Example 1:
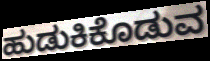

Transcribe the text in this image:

ಹುಡುಕಿಕೊಡುವ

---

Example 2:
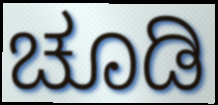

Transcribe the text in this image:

ಚೂಡಿ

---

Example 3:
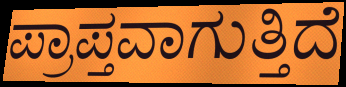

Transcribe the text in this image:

ಪ್ರಾಪ್ತವಾಗುತ್ತಿದೆ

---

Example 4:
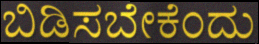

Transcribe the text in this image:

ಬಿಡಿಸಬೇಕೆಂದು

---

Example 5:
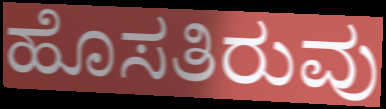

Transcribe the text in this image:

ಹೊಸತಿರುವು